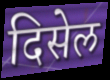
दिसेल